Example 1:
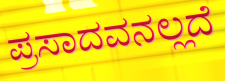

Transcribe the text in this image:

ಪ್ರಸಾದವನಲ್ಲದೆ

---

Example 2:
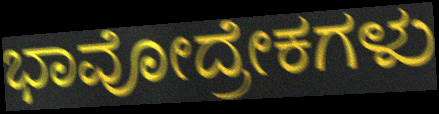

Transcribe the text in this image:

ಭಾವೋದ್ರೇಕಗಳು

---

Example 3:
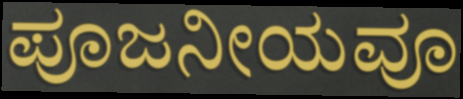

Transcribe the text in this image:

ಪೂಜನೀಯವೂ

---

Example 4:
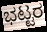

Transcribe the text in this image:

ಭಟ್ಟರ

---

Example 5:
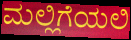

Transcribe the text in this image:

ಮಲ್ಲಿಗೆಯಲಿ